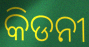
କିଡନୀ